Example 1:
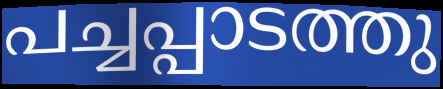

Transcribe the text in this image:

പച്ചപ്പാടത്തു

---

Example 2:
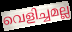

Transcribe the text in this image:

വെളിച്ചമല്ല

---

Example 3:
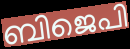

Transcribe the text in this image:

ബിജെപി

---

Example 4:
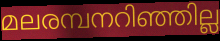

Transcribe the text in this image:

മലരമ്പനറിഞ്ഞില്ല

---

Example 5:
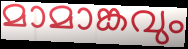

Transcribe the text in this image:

മാമാങ്കവും